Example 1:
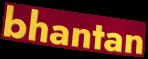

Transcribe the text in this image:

bhantan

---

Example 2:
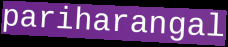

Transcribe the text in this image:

pariharangal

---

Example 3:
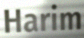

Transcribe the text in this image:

Harim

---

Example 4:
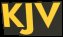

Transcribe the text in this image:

KJV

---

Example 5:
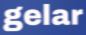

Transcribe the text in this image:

gelar